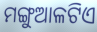
ମଙ୍ଗୁଆଳଟିଏ